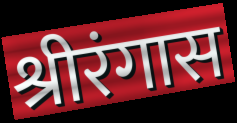
श्रीरंगास